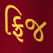
ફ્રિજ